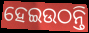
ହେଇଉଠନ୍ତି